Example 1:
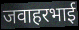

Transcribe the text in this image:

जवाहरभाई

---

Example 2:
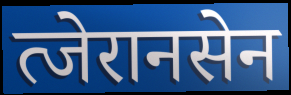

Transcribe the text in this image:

त्जेरानसेन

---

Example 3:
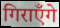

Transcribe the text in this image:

गिराएँगे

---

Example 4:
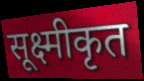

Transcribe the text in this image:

सूक्ष्मीकृत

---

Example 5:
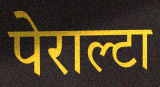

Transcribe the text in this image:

पेराल्टा